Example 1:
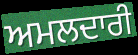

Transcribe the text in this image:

ਅਮਲਦਾਰੀ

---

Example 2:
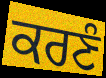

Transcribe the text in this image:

ਕਰਣੰ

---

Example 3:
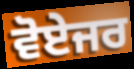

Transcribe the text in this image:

ਵੋਏਜਰ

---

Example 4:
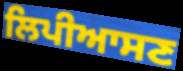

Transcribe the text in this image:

ਲਿਪੀਆਸਣ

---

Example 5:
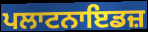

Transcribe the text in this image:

ਪਲਾਟਨਾਇਡਜ਼